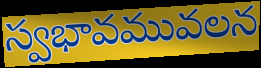
స్వభావమువలన